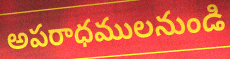
అపరాధములనుండి